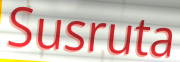
Susruta